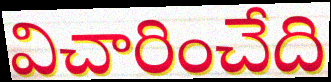
విచారించేది